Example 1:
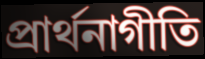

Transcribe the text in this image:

প্রার্থনাগীতি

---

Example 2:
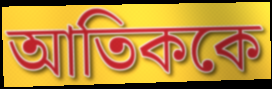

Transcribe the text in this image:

আতিককে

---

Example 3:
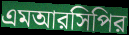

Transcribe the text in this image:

এমআরসিপির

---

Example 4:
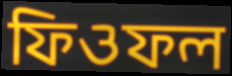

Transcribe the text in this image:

ফিওফল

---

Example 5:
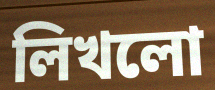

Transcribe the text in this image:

লিখলো